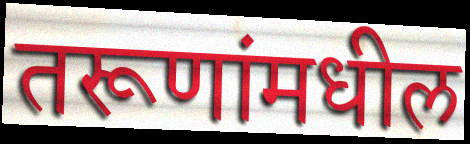
तरूणांमधील